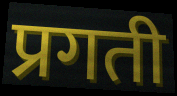
प्रगती